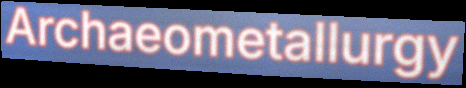
Archaeometallurgy